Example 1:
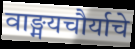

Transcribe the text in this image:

वाङ्मयचौर्याचे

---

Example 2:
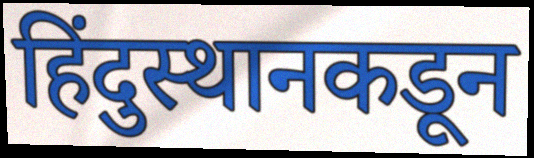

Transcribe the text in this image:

हिंदुस्थानकडून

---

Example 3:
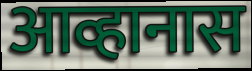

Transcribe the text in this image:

आव्हानास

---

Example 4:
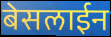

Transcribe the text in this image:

बेसलाईन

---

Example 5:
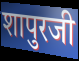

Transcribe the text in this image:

शापुरजी